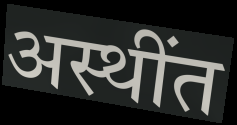
अस्थींत